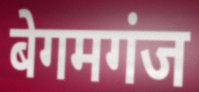
बेगमगंज